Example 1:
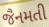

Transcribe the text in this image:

જૈનમતી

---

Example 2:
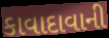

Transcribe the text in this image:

કાવાદાવાની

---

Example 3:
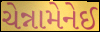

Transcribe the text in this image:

ચેન્નામેનેઈ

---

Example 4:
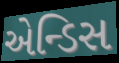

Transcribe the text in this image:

એન્ડિસ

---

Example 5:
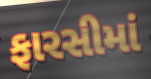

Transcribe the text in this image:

ફારસીમાં